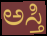
ಅಸ್ತಿ